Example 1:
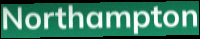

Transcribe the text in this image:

Northampton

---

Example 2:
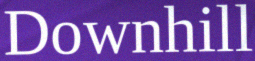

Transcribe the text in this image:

Downhill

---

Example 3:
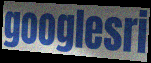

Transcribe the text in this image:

googlesri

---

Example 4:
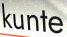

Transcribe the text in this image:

kunte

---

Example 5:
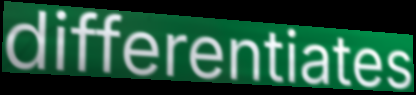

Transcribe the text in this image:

differentiates